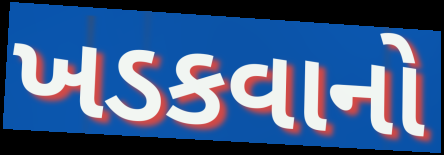
ખડકવાનો